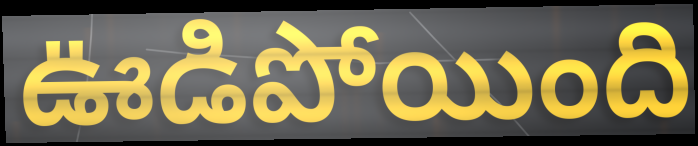
ఊడిపోయింది